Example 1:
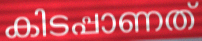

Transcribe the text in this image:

കിടപ്പാണത്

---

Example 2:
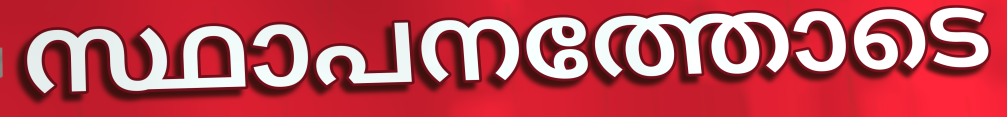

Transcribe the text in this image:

സ്ഥാപനത്തോടെ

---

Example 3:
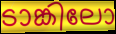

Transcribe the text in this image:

ടാങ്കിലോ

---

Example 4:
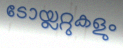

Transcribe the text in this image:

ടോയ്ലറ്റുകളും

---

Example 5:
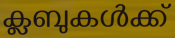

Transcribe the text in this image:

ക്ലബുകൾക്ക്